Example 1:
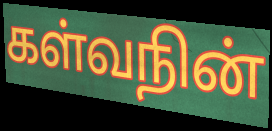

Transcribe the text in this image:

கள்வநின்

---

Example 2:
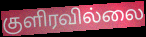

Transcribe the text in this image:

குளிரவில்லை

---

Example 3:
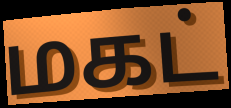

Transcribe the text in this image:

மகட்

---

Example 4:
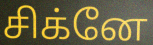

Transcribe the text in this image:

சிக்னே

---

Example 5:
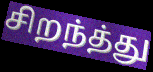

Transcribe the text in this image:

சிறந்த்து